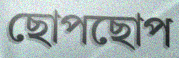
ছোপছোপ